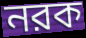
নরক